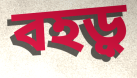
বহড়ু